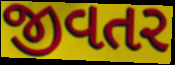
જીવતર